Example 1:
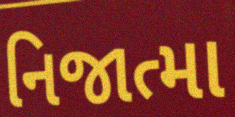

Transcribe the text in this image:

નિજાત્મા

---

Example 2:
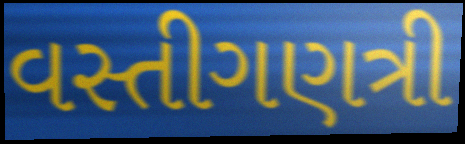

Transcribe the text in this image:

વસ્તીગણત્રી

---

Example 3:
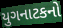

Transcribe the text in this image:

યુગનાટકનો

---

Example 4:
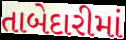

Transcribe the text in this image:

તાબેદારીમાં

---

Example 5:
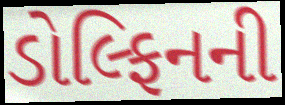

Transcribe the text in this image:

ડોલ્ફિનની